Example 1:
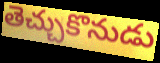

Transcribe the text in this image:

తెచ్చుకొనుడు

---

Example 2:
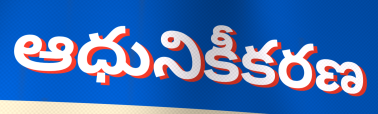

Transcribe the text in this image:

ఆధునికీకరణ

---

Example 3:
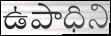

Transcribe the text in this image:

ఉపాధిని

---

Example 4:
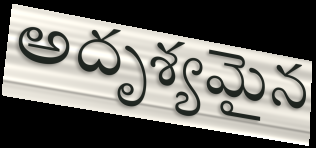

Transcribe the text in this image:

అదృశ్యమైన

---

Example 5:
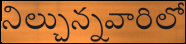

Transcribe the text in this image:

నిల్చున్నవారిలో